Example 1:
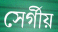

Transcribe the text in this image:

সের্গীয়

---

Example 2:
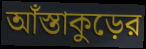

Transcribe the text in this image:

আঁস্তাকুড়ের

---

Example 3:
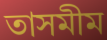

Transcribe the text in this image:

তাসমীম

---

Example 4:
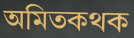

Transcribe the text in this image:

অমিতকথক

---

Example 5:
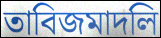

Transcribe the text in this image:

তাবিজমাদলি